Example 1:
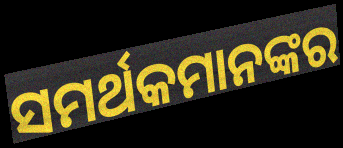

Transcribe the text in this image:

ସମର୍ଥକମାନଙ୍କର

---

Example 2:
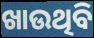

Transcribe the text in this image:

ଖାଉଥିବି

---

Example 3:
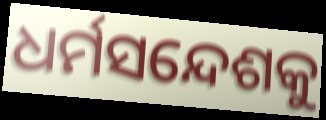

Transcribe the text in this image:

ଧର୍ମସନ୍ଦେଶକୁ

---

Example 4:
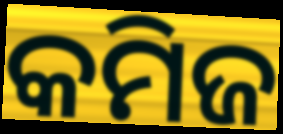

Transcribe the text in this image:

କମିଜ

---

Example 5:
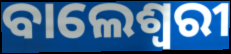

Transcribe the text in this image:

ବାଲେଶ୍ୱରୀ